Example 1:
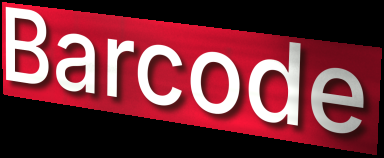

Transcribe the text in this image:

Barcode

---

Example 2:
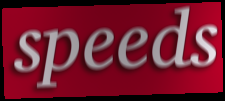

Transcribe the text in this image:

speeds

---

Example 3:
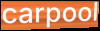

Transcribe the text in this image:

carpool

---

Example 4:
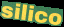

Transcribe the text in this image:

silico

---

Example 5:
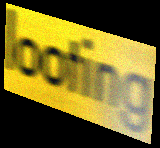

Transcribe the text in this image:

looting